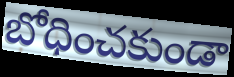
బోధించకుండా